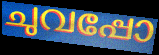
ചുവപ്പോ